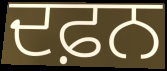
ਦਫ਼ਨ